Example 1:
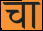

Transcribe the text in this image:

चा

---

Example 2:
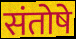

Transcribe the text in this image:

संतोषे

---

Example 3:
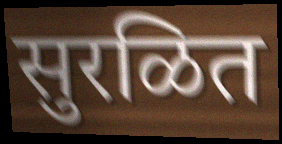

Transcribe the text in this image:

सुरळित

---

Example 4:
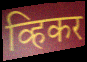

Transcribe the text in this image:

व्हिकर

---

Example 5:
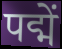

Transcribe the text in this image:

पद्में